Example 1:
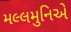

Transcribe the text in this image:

મલ્લમુનિએ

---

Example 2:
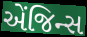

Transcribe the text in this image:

એંજિન્સ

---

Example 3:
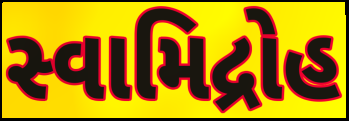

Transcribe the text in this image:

સ્વામિદ્રોહ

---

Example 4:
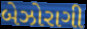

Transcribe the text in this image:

બેઝોરાગી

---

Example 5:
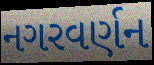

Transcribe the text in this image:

નગરવર્ણન